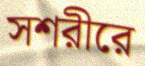
সশরীরে